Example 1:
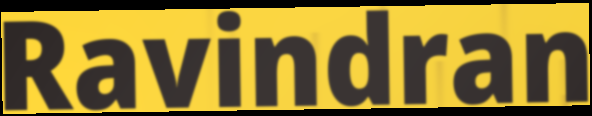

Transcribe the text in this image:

Ravindran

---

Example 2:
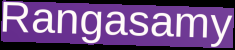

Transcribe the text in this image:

Rangasamy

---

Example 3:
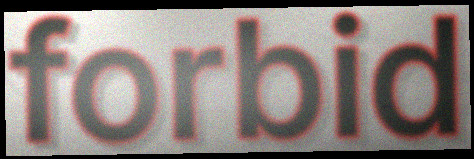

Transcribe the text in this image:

forbid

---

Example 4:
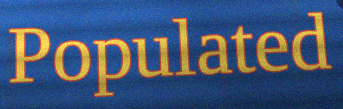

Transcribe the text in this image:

Populated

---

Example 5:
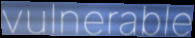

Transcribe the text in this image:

vulnerable